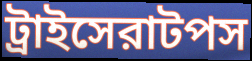
ট্রাইসেরাটপস